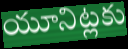
యూనిట్లకు